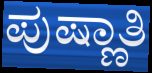
ಪುಷ್ಣಾತಿ